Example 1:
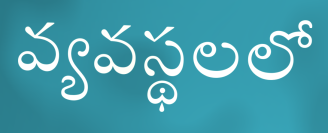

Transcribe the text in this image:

వ్యవస్థలలో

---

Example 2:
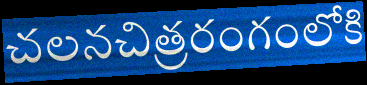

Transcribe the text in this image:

చలనచిత్రరంగంలోకి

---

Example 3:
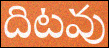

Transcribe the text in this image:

దిటవు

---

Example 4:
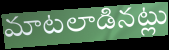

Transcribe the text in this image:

మాటలాడినట్లు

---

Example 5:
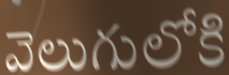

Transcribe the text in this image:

వెలుగులోకి